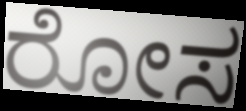
ರೋಸ